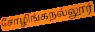
சோழிங்கநல்லூர்